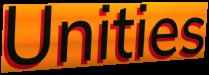
Unities